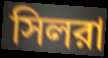
সিলরা